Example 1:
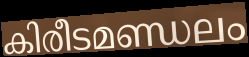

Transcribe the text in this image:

കിരീടമണ്ഡലം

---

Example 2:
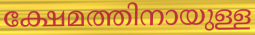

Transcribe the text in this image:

ക്ഷേമത്തിനായുള്ള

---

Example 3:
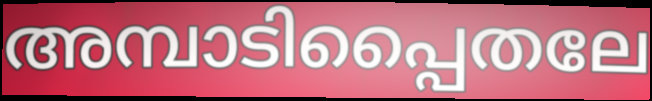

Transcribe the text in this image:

അമ്പാടിപ്പൈതലേ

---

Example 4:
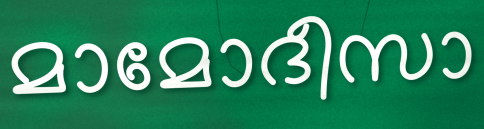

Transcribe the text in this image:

മാമോദീസാ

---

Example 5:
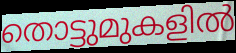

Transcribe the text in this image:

തൊട്ടുമുകളിൽ